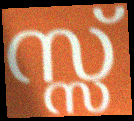
സ്സ്